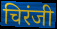
चिरंजी